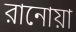
রানোয়া